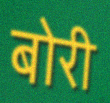
बोरी